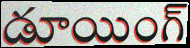
డూయింగ్